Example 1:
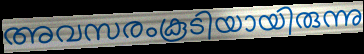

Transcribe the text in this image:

അവസരംകൂടിയായിരുന്നു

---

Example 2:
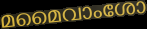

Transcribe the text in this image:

മമൈവാംശോ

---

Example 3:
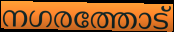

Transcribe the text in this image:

നഗരത്തോട്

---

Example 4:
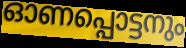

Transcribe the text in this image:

ഓണപ്പൊട്ടനും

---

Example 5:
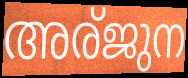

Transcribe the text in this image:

അര്ജുന